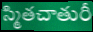
స్మితచాతురీ